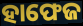
ହାଫେଜ